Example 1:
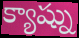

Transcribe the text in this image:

క్యాష్ను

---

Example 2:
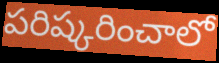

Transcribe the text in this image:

పరిష్కరించాలో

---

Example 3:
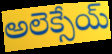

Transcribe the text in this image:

అలెక్సేయ్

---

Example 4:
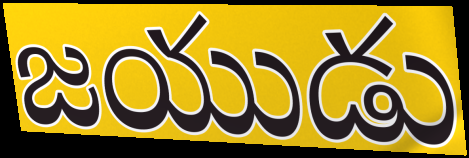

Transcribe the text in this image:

జయుడు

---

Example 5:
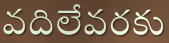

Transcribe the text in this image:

వదిలేవరకు